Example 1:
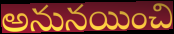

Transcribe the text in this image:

అనునయించి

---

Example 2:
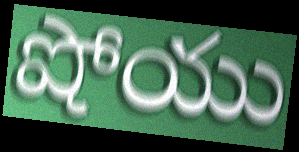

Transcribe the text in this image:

షోయు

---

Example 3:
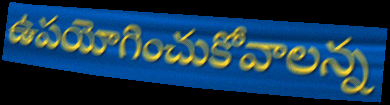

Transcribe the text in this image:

ఉపయోగించుకోవాలన్న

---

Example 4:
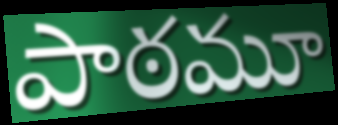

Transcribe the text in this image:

పాఠమూ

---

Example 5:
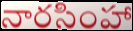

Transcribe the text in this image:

నారసింహా